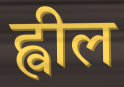
ह्वील